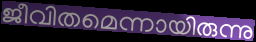
ജീവിതമെന്നായിരുന്നു